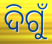
ଦିଗୁଁ